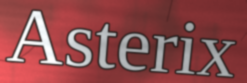
Asterix